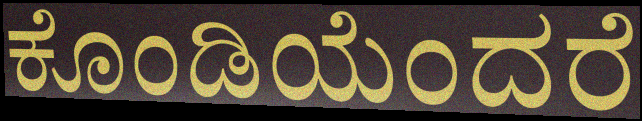
ಕೊಂಡಿಯೆಂದರೆ